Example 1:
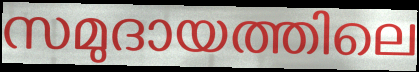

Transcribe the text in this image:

സമുദായത്തിലെ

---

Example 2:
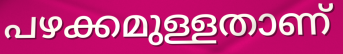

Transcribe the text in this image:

പഴക്കമുള്ളതാണ്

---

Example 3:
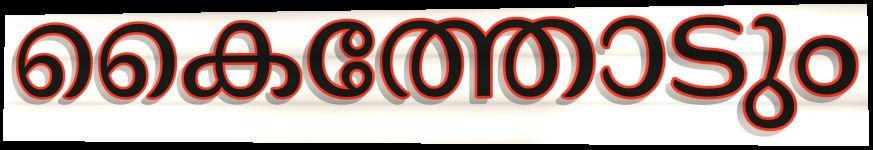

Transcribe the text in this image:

കൈത്തോടും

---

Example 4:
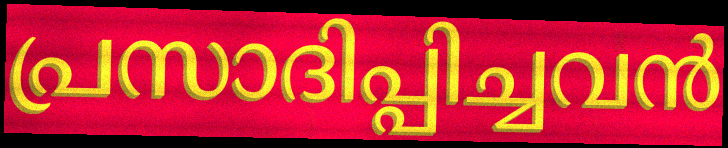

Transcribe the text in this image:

പ്രസാദിപ്പിച്ചവൻ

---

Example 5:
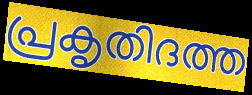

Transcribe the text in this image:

പ്രകൃതിദത്ത